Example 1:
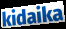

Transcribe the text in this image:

kidaika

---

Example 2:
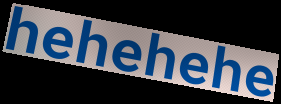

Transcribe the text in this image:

hehehehe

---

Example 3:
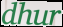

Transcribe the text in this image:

dhur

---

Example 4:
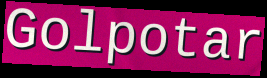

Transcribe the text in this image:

Golpotar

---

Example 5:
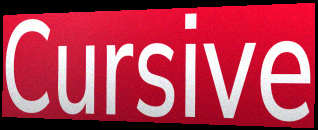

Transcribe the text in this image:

Cursive